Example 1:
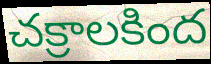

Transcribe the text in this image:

చక్రాలకింద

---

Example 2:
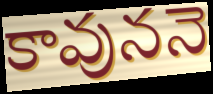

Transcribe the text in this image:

కావుననె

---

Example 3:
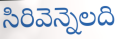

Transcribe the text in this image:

సిరివెన్నెలది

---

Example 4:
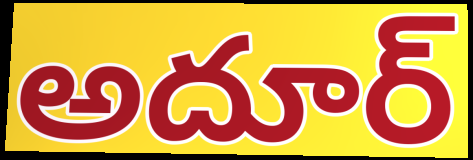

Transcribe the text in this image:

అదూర్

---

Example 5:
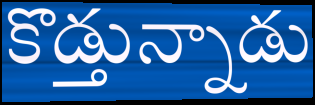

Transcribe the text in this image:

కొడ్తున్నాడు